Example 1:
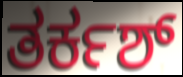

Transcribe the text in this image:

ತರ್ಕಶ್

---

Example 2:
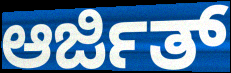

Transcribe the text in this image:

ಆರ್ಜಿತ್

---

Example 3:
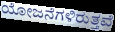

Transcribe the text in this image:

ಯೋಜನೆಗಳಿರುತ್ತವೆ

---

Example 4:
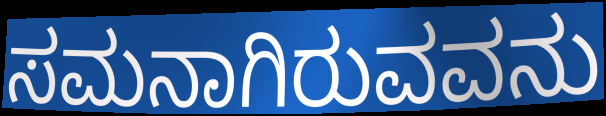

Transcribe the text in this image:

ಸಮನಾಗಿರುವವನು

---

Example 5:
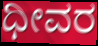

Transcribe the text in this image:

ಧೀವರ